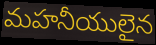
మహనీయులైన